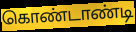
கொண்டாண்டி